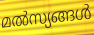
മൽസ്യങ്ങൾ